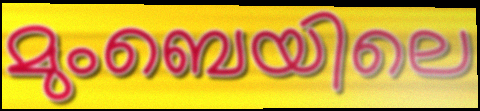
മുംബെയിലെ